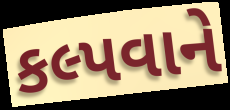
કલ્પવાને